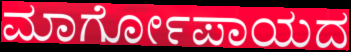
ಮಾರ್ಗೋಪಾಯದ